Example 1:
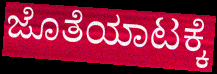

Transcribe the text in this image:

ಜೊತೆಯಾಟಕ್ಕೆ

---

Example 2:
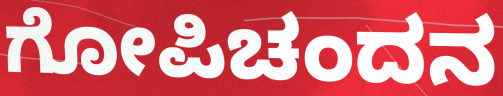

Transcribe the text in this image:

ಗೋಪಿಚಂದನ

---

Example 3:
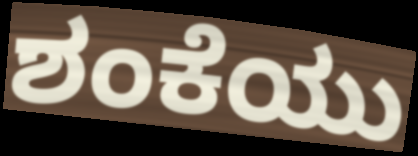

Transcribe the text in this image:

ಶಂಕೆಯು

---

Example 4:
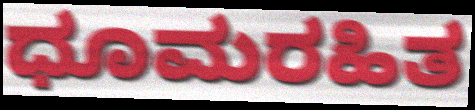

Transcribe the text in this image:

ಧೂಮರಹಿತ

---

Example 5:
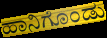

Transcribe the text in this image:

ಹಾನಿಗೊಂಡು